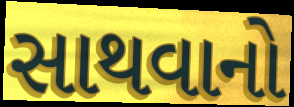
સાથવાનો